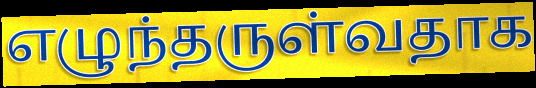
எழுந்தருள்வதாக